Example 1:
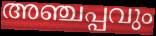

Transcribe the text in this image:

അഞ്ചപ്പവും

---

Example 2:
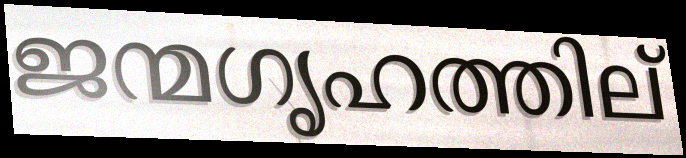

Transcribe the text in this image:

ജന്മഗൃഹത്തില്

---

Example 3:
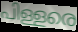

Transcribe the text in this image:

പിള്ളരെ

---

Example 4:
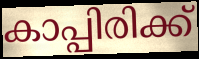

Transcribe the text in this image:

കാപ്പിരിക്ക്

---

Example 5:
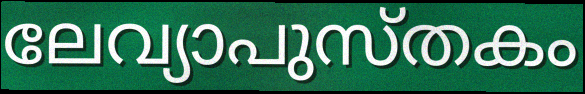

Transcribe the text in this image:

ലേവ്യാപുസ്തകം